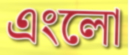
এংলো